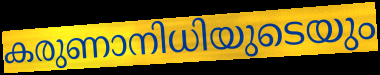
കരുണാനിധിയുടെയും